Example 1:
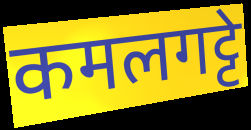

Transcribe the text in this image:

कमलगट्टे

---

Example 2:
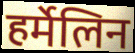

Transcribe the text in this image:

हर्मेलिन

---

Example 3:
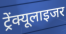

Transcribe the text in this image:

ट्रेंक्यूलाइजर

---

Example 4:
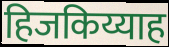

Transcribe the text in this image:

हिजकिय्याह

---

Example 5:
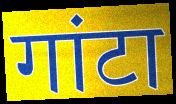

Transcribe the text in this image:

गांटा